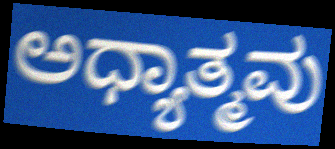
ಅಧ್ಯಾತ್ಮವು